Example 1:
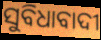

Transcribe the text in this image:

ସୁବିଧାବାଦୀ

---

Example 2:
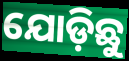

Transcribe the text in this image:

ଯୋଡ଼ିଛୁ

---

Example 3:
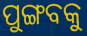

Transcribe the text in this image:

ପୁଙ୍ଗବକୁ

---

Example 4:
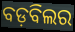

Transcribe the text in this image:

ବଡ଼ବିଲର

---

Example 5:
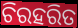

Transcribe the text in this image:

ଚିରହରିତ